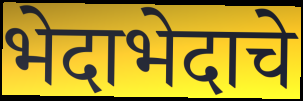
भेदाभेदाचे